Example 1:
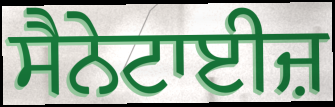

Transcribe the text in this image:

ਸੈਨੇਟਾਈਜ਼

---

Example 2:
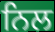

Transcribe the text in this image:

ਨਿਲ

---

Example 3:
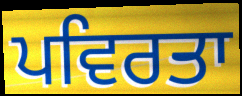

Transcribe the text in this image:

ਪਵਿਰਤਾ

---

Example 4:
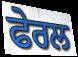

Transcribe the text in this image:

ਫੇਰਲ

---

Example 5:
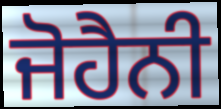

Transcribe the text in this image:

ਜੋਹੈਨੀ